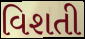
વિશતી